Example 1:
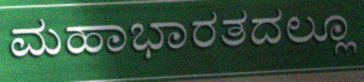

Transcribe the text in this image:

ಮಹಾಭಾರತದಲ್ಲೂ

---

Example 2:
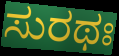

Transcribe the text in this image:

ಸುರಥಃ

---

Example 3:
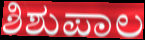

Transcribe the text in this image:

ಶಿಶುಪಾಲ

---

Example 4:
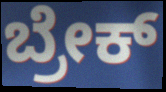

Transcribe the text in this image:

ಬ್ರೇಕ್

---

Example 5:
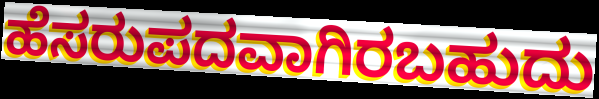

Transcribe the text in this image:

ಹೆಸರುಪದವಾಗಿರಬಹುದು